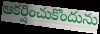
ఆకర్షించుకొందును